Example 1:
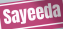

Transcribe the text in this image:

Sayeeda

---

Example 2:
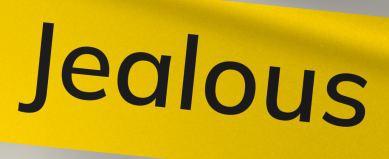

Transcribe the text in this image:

Jealous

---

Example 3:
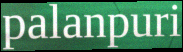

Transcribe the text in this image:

palanpuri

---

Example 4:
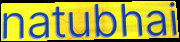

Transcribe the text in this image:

natubhai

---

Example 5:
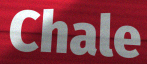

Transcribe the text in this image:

Chale